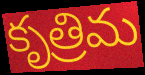
కృత్రిమ